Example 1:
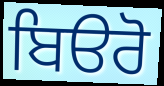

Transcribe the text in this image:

ਬਿੳਰੋ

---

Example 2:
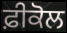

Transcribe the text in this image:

ਫ਼ੀਕੋਲ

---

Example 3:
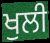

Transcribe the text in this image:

ਖੁਲੀ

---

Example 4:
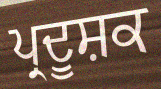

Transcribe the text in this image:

ਪ੍ਰਦੂਸ਼ਕ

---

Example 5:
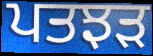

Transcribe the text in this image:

ਪਤਝੜ